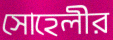
সোহেলীর